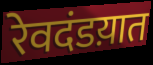
रेवदंडय़ात